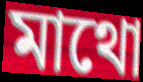
মাথো